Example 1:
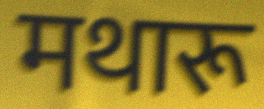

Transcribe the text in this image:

मथारू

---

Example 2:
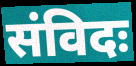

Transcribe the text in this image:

संविदः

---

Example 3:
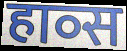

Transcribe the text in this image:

हाव्स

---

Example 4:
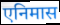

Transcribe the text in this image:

एनिमास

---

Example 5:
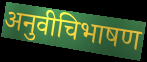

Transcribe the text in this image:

अनुवीचिभाषण